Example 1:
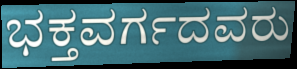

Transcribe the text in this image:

ಭಕ್ತವರ್ಗದವರು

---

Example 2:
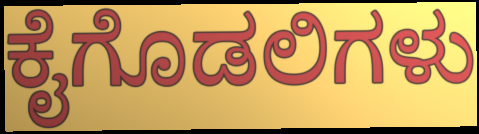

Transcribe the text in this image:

ಕೈಗೊಡಲಿಗಳು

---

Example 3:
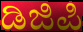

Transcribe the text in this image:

ಡಿಜಿಪಿ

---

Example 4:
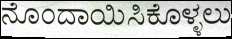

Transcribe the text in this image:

ನೊಂದಾಯಿಸಿಕೊಳ್ಳಲು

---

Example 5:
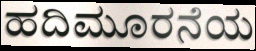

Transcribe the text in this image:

ಹದಿಮೂರನೆಯ